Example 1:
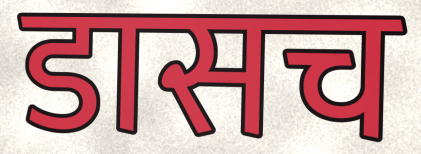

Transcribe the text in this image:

डासच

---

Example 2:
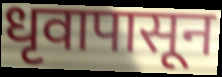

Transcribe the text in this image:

धृवापासून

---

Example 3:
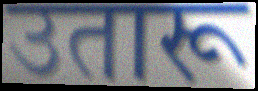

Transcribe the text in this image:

उतारू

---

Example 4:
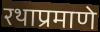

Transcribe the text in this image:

रथाप्रमाणे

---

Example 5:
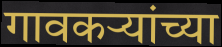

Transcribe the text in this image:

गावकऱ्यांच्या